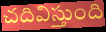
చదివిస్తుంది